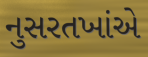
નુસરતખાંએ